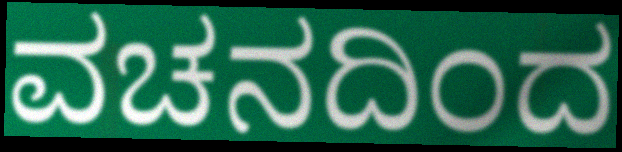
ವಚನದಿಂದ